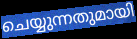
ചെയ്യുന്നതുമായി